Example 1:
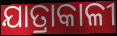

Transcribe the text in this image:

ଯାତ୍ରାକାଳୀ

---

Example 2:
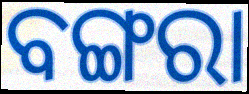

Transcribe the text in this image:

ବଙ୍ଗରା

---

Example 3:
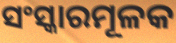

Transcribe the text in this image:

ସଂସ୍କାରମୂଳକ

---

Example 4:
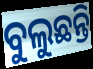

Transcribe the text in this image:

ବୁଲୁଛନ୍ତି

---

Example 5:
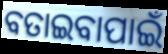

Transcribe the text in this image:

ବତାଇବାପାଇଁ